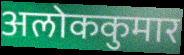
अलोककुमार